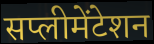
सप्लीमेंटेशन